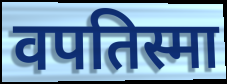
वपतिस्मा